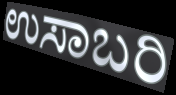
ಉಸಾಬರಿ